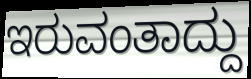
ಇರುವಂತಾದ್ದು